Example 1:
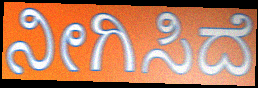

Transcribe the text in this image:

ನೀಗಿಸಿದೆ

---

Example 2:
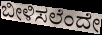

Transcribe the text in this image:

ಬೀಳಿಸಲೆಂದೇ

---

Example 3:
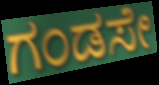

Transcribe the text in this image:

ಗಂಡಸೇ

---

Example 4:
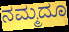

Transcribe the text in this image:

ನಮ್ಮದೂ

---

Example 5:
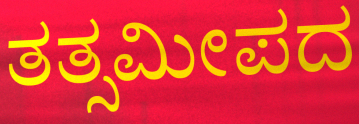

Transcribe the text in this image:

ತತ್ಸಮೀಪದ